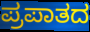
ಪ್ರಪಾತದ